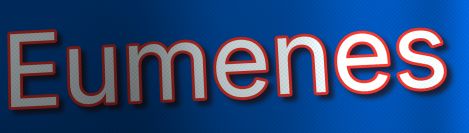
Eumenes